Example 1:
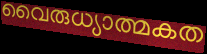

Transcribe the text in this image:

വൈരുധ്യാത്മകത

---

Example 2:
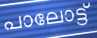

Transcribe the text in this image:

പാലോട്ട്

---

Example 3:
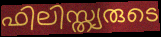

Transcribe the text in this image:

ഫിലിസ്ത്യരുടെ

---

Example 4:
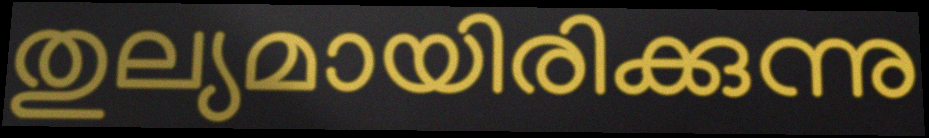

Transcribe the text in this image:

തുല്യമായിരിക്കുന്നു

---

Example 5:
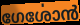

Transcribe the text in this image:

ഗേൎശോൻ